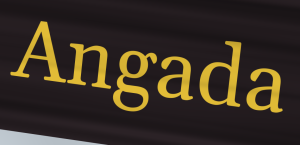
Angada